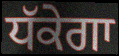
ਧੱਕੇਗਾ